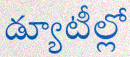
డ్యూటీల్లో